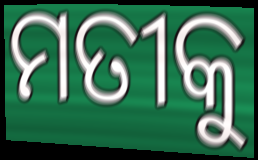
ମତୀକୁ